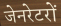
जेनरेटरों